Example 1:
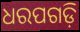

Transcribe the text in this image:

ଧରପଗଡ଼ି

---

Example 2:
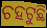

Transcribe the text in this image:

ଚହଟୁଛି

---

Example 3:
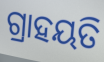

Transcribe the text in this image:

ଗ୍ରାହୟତି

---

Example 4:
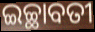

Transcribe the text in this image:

ଇଚ୍ଛାବତୀ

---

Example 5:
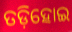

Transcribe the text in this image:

ତଡ଼ିହୋଇ